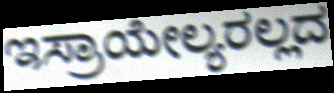
ಇಸ್ರಾಯೇಲ್ಯರಲ್ಲದ